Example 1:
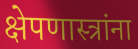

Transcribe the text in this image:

क्षेपणास्त्रांना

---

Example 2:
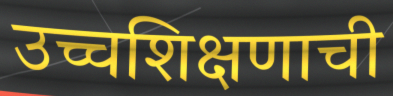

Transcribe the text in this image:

उच्चशिक्षणाची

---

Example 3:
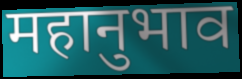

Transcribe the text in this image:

महानुभाव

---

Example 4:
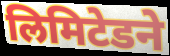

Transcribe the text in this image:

लिमिटेडने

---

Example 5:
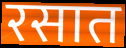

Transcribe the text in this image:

रसात